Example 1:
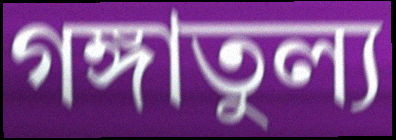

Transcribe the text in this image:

গঙ্গাতুল্য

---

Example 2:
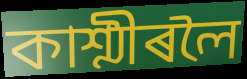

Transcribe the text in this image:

কাশ্মীৰলৈ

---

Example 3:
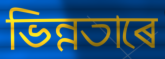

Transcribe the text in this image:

ভিন্নতাৰে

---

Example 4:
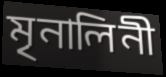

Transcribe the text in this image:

মৃনালিনী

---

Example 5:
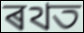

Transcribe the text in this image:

ৰথত